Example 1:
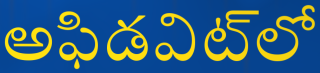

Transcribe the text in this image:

అఫిడవిట్‌లో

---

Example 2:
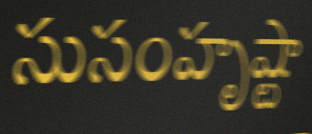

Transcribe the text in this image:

సుసంహృష్టా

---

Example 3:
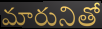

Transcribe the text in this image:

మారునితో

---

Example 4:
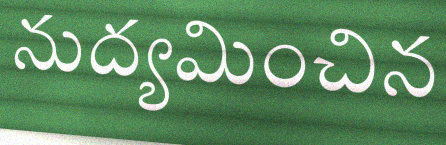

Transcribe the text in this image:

నుద్యమించిన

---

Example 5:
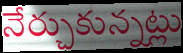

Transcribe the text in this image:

నేర్చుకున్నట్లు